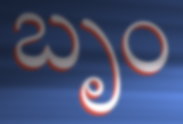
బృం